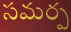
సమర్ప